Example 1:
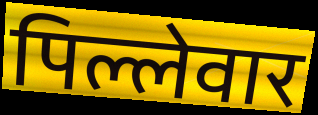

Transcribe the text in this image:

पिल्लेवार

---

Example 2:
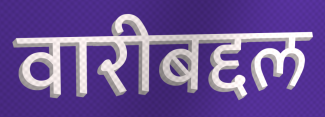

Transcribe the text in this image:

वारीबद्दल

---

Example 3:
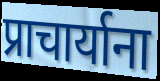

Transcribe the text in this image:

प्राचार्याना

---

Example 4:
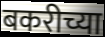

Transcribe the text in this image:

बकरीच्या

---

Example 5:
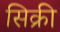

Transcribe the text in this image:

सिक्री